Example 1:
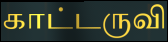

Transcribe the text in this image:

காட்டருவி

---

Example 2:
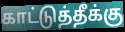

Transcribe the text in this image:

காட்டுத்தீக்கு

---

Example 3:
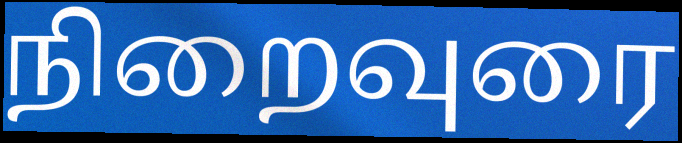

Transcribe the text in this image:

நிறைவுரை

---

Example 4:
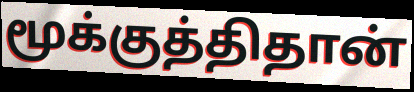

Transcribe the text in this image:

மூக்குத்திதான்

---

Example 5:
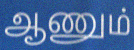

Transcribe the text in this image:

ஆணும்